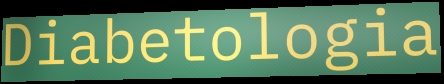
Diabetologia